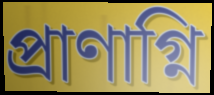
প্রাণাগ্নি